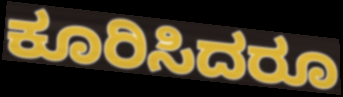
ಕೂರಿಸಿದರೂ